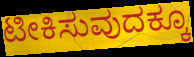
ಟೀಕಿಸುವುದಕ್ಕೂ